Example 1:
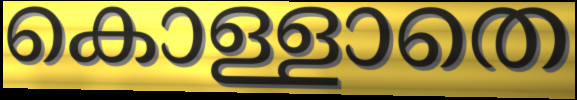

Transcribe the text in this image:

കൊള്ളാതെ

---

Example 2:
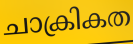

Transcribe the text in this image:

ചാക്രികത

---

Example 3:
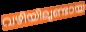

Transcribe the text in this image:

വഴിയിലുണ്ടായ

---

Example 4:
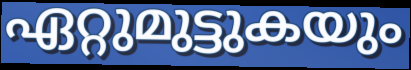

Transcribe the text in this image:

ഏറ്റുമുട്ടുകയും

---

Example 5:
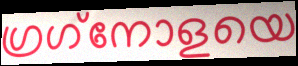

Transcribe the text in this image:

ഗ്രഗ്‌നോളയെ